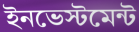
ইনভেস্টমেন্ট